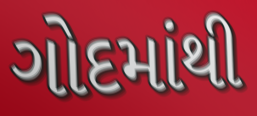
ગોદમાંથી